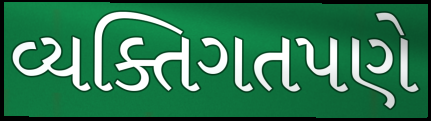
વ્યક્તિગતપણે